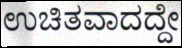
ಉಚಿತವಾದದ್ದೇ